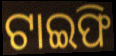
ଟାଇଫି